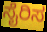
ಸೈರಿಸ